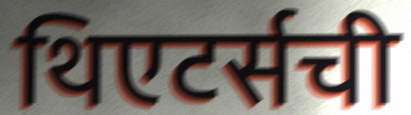
थिएटर्सची